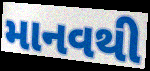
માનવથી